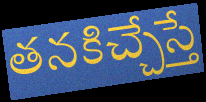
తనకిచ్చేస్తే